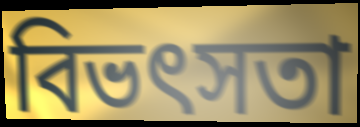
বিভৎসতা